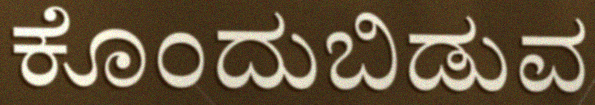
ಕೊಂದುಬಿಡುವ